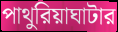
পাথুরিয়াঘাটার